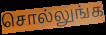
சொல்லுங்க